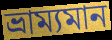
ভ্ৰাম্যমান